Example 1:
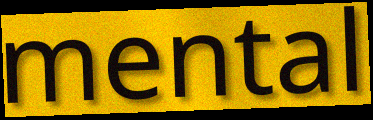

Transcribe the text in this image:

mental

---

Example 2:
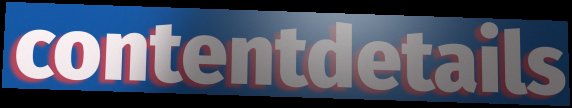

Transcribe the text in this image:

contentdetails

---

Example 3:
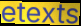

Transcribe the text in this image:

etexts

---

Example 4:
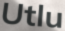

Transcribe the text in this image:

Utlu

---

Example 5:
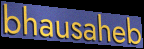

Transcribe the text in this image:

bhausaheb